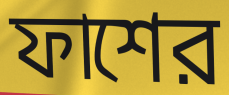
ফাশের